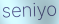
seniyo